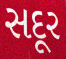
સદૂર